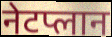
नेटप्लान